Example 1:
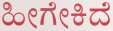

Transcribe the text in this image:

ಹೀಗೇಕಿದೆ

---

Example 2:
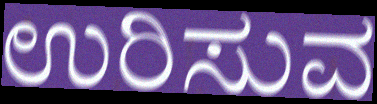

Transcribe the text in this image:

ಉರಿಸುವ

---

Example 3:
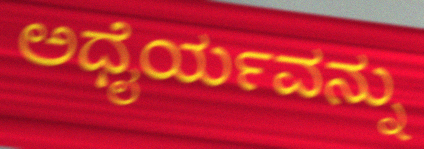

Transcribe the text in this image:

ಅಧೈರ್ಯವನ್ನು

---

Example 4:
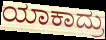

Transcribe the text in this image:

ಯಾಕಾದ್ರು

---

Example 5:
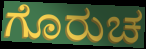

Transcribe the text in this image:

ಗೊರುಚ